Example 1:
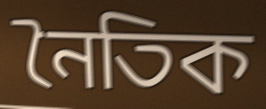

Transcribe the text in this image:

নৈতিক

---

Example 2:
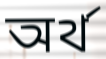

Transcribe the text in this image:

অৰ্থ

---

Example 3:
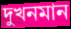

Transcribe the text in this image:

দুখনমান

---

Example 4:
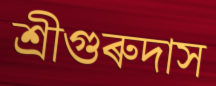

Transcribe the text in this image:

শ্ৰীগুৰুদাস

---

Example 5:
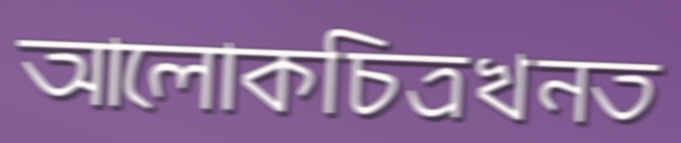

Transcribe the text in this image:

আলোকচিত্ৰখনত